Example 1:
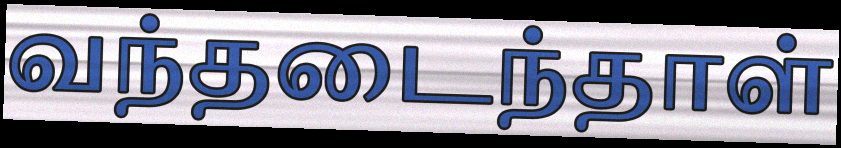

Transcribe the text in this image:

வந்தடைந்தாள்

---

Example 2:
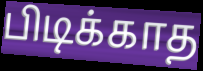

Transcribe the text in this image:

பிடிக்காத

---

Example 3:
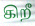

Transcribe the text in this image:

கிறீ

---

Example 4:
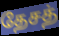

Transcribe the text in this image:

தேசத்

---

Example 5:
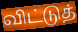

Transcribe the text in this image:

விட்டுத்